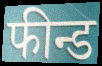
फीन्ड